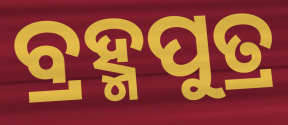
ବ୍ରହ୍ମପୁତ୍ର